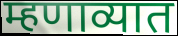
म्हणाव्यात